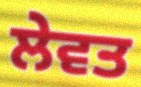
ਲੇਵਤ